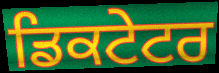
ਡਿਕਟੇਟਰ